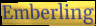
Emberling